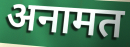
अनामत